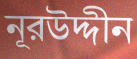
নূরউদ্দীন